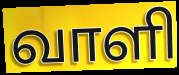
வாளி